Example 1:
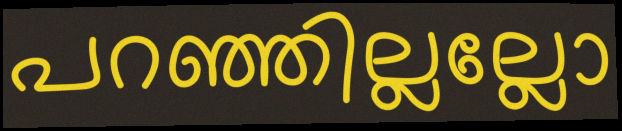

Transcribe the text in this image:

പറഞ്ഞില്ലല്ലോ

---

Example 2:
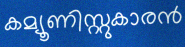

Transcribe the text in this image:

കമ്യൂണിസ്റ്റുകാരൻ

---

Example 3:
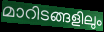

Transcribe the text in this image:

മാറിടങ്ങളിലും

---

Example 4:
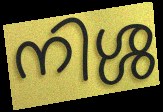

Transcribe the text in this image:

നിശ്ശ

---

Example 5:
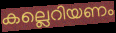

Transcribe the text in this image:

കല്ലെറിയണം